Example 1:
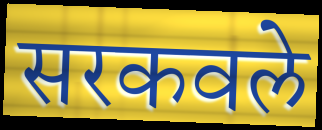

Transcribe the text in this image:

सरकवले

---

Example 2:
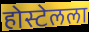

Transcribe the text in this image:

होस्टेलला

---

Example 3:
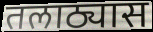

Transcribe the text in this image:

तलाठ्यास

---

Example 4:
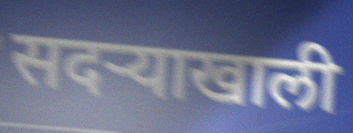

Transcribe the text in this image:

सदऱ्याखाली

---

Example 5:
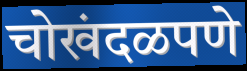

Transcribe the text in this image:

चोखंदळपणे